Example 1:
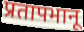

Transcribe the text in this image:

प्रतापभानू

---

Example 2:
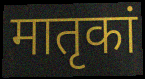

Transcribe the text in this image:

मातृकां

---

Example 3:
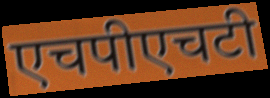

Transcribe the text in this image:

एचपीएचटी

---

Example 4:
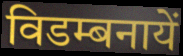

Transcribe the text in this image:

विडम्बनायें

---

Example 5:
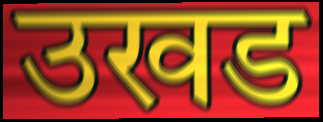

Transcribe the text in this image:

उखड